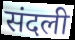
संदली